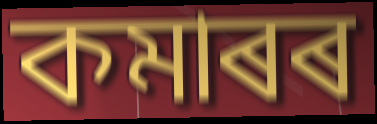
কমাৰৰ